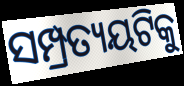
ସମ୍ପ୍ରତ୍ୟୟଟିକୁ